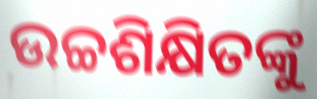
ଉଚ୍ଚଶିକ୍ଷିତଙ୍କୁ